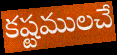
కష్టములచే